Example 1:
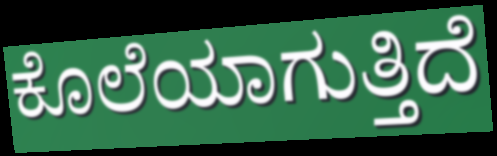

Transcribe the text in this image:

ಕೊಲೆಯಾಗುತ್ತಿದೆ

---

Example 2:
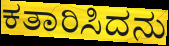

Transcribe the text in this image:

ಕತಾರಿಸಿದನು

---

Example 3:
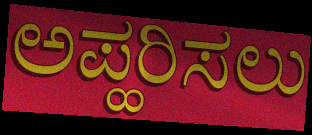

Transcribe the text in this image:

ಅಪ್ಹರಿಸಲು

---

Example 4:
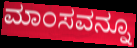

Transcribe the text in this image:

ಮಾಂಸವನ್ನೂ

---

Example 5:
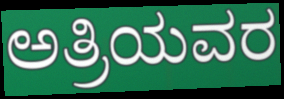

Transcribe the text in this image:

ಅತ್ರಿಯವರ